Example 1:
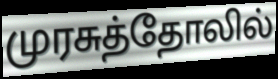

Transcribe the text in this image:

முரசுத்தோலில்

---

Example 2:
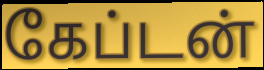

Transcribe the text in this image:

கேப்டன்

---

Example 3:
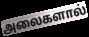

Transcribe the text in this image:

அலைகளால்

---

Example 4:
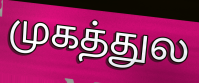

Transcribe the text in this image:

முகத்துல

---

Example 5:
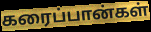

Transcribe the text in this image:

கரைப்பான்கள்